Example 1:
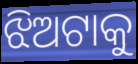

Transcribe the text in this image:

ଝିଅଟାକୁ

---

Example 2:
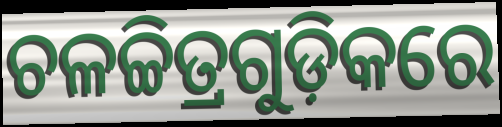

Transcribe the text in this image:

ଚଳଚ୍ଚିତ୍ରଗୁଡ଼ିକରେ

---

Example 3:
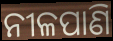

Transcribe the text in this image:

ନୀଳପାଣି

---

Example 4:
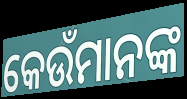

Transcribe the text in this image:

କେଉଁମାନଙ୍କ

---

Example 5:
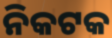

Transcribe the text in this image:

ନିକଟକ